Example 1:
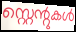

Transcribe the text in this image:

സ്റ്റെന്റുകൾ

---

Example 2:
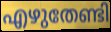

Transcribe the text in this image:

എഴുതേണ്ടി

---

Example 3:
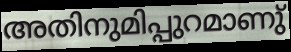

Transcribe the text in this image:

അതിനുമിപ്പുറമാണു്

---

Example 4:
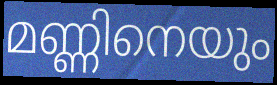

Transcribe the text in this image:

മണ്ണിനെയും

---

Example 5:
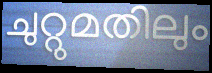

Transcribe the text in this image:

ചുറ്റുമതിലും